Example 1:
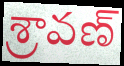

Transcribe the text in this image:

శ్రావణ్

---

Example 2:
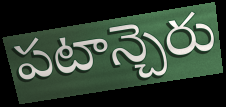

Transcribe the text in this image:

పటాన్చెరు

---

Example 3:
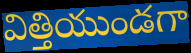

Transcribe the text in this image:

విత్తియుండగా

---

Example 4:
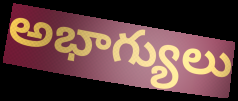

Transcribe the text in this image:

అభాగ్యులు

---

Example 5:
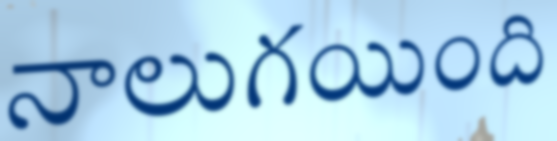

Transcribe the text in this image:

నాలుగయింది